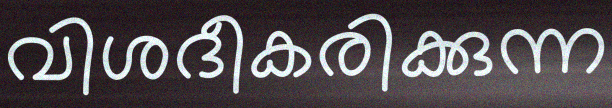
വിശദീകരിക്കുന്ന